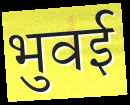
भुवई